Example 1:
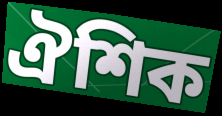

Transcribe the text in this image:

ঐশিক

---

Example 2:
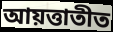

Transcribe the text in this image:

আয়ত্তাতীত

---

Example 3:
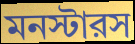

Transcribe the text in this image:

মনস্টারস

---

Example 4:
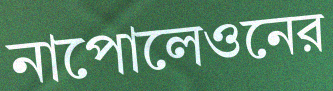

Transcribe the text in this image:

নাপোলেওনের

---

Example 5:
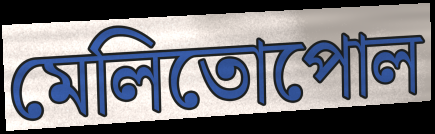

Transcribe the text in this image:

মেলিতোপোল